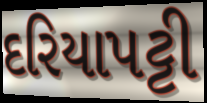
દરિયાપટ્ટી